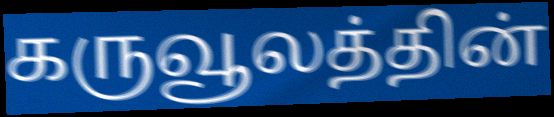
கருவூலத்தின்